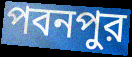
পবনপুর